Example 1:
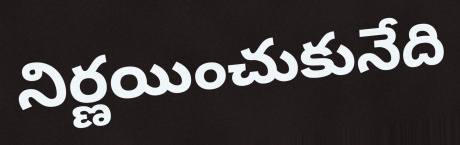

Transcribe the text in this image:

నిర్ణయించుకునేది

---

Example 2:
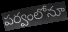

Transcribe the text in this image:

పర్వంలోనూ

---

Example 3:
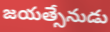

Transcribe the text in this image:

జయత్సేనుడు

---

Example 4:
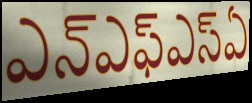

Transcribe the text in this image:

ఎన్ఎఫ్ఎస్ఏ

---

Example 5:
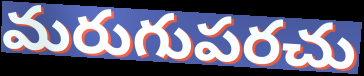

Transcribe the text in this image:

మరుగుపరచు